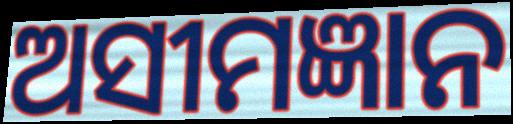
ଅସୀମଜ୍ଞାନ